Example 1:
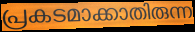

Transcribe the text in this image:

പ്രകടമാക്കാതിരുന്ന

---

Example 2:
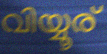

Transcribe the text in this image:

വിയ്യൂര്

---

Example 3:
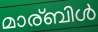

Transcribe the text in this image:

മാര്ബിൾ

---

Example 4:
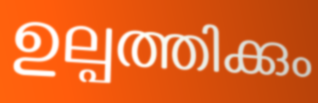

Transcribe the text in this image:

ഉല്പത്തിക്കും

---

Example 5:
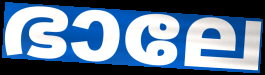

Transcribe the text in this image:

ഭാലേ